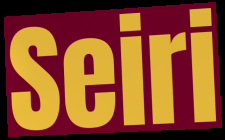
Seiri